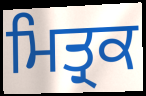
ਮਿਤ੍ਰਕ